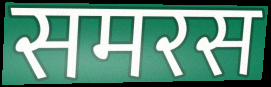
समरस